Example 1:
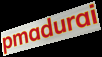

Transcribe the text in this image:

pmadurai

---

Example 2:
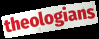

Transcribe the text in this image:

theologians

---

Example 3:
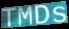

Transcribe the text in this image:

TMDs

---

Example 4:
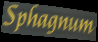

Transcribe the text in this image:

Sphagnum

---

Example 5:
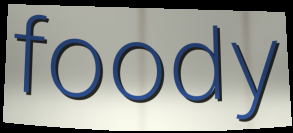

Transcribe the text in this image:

foody